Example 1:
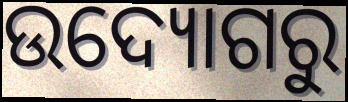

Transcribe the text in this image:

ଉଦ୍ୟୋଗରୁ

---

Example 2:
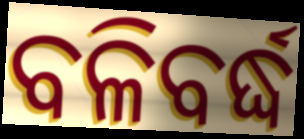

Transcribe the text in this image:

ବଳିବର୍ଦ୍ଧ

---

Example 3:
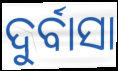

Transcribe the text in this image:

ଦୁର୍ବାସା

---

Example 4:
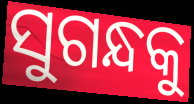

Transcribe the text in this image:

ସୁଗନ୍ଧକୁ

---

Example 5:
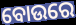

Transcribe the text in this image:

ବୋଉରେ